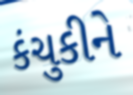
કંચુકીને